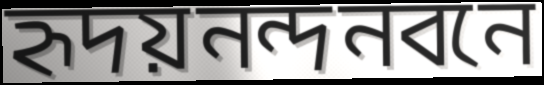
হৃদয়নন্দনবনে